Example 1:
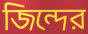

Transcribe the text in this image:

জিন্দের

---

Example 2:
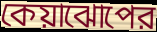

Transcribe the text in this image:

কেয়াঝোপের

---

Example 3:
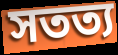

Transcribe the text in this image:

সতত্য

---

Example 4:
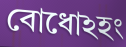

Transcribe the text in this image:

বোধোঽহং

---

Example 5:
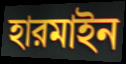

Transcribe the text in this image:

হারমাইন